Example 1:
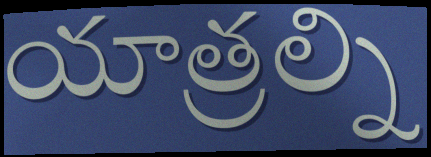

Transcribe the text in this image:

యాత్రల్ని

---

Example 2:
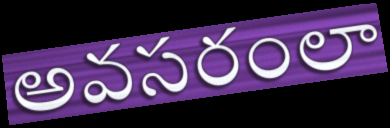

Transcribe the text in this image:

అవసరంలా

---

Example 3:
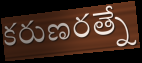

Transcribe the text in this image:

కరుణరత్నే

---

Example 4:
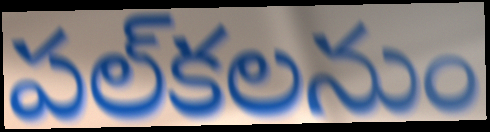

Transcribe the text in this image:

పల్‌కలనుం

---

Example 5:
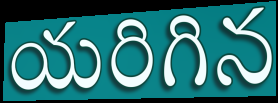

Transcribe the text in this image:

యరిగిన